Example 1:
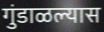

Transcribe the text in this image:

गुंडाळल्यास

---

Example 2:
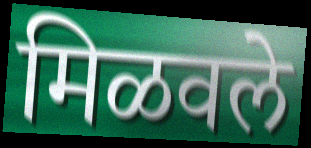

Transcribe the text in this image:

मिळवले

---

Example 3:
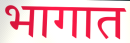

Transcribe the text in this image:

भागात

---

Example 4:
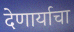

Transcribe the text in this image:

देणार्याचा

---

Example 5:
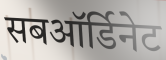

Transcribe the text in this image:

सबऑर्डिनेट